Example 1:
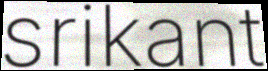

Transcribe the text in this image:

srikant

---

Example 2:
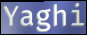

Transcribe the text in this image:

Yaghi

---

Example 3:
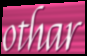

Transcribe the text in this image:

othar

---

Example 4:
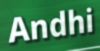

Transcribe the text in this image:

Andhi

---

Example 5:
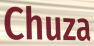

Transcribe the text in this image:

Chuza